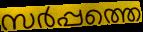
സർപ്പത്തെ